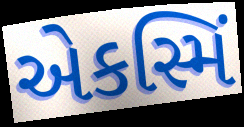
એકસ્મિં